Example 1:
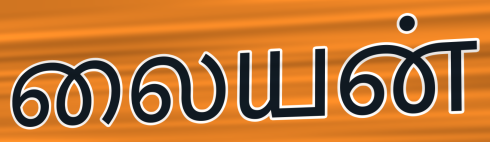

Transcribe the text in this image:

லையன்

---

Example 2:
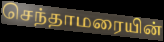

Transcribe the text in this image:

செந்தாமரையின்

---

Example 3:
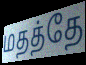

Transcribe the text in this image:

மதத்தே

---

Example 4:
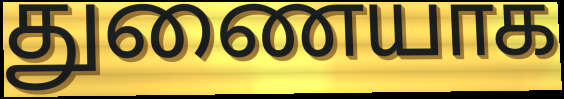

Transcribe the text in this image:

துணையாக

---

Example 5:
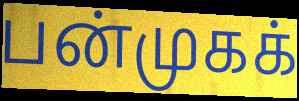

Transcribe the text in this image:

பன்முகக்